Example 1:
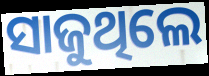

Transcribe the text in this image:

ସାଜୁଥିଲେ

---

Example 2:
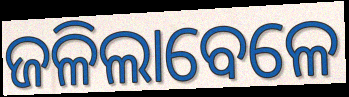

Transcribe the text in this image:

ଜଳିଲାବେଳେ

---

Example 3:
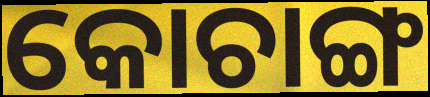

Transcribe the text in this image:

କୋଚାଙ୍ଗ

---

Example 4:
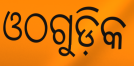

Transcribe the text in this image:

ଓଠଗୁଡ଼ିକ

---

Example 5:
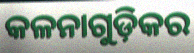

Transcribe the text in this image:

କଳନାଗୁଡ଼ିକର